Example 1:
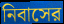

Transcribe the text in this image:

নিবাসের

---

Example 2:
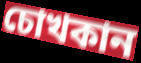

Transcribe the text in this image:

চোখকান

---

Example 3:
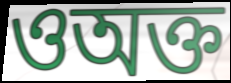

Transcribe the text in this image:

ওঅক্ত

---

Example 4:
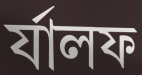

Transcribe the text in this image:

র্যালফ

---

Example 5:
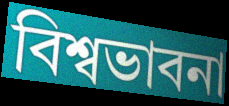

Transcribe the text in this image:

বিশ্বভাবনা